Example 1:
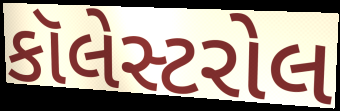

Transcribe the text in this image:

કૉલેસ્ટરોલ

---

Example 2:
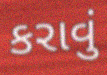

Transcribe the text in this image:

કરાવું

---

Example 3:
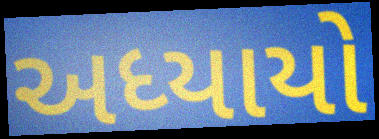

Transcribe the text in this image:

અધ્યાયો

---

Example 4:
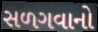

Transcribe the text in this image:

સળગવાનો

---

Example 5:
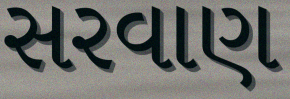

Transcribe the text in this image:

સરવાણ